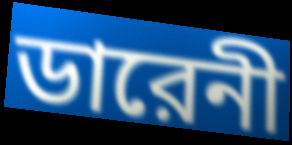
ডারেনী